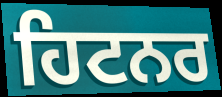
ਹਿਟਨਰ